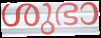
ശുഭാ